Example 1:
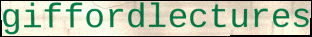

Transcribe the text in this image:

giffordlectures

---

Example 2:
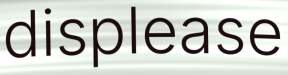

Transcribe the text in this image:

displease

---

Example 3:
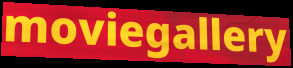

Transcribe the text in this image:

moviegallery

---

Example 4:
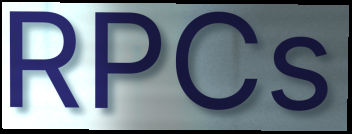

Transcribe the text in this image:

RPCs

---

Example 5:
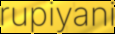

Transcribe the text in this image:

rupiyani